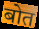
बोत